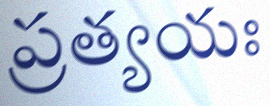
ప్రత్యయః